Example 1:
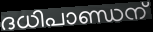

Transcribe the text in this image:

ദധിപാണ്ഡന്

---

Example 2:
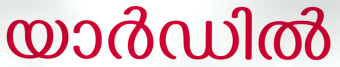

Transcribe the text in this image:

യാർഡിൽ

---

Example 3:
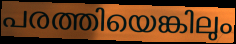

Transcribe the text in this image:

പരത്തിയെങ്കിലും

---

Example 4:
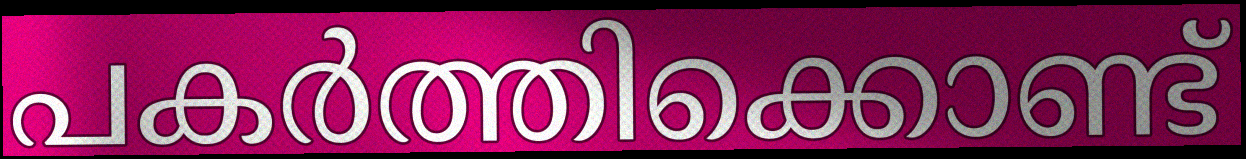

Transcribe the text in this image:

പകർത്തിക്കൊണ്ട്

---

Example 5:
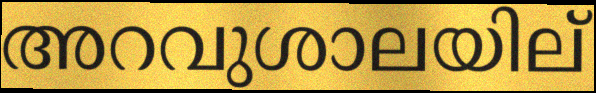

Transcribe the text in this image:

അറവുശാലയില്